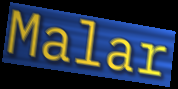
Malar